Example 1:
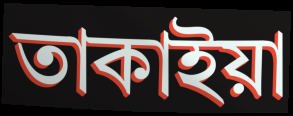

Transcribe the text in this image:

তাকাইয়া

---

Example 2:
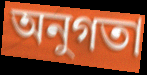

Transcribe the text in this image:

অনুগতা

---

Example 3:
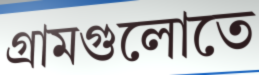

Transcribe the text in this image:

গ্রামগুলোতে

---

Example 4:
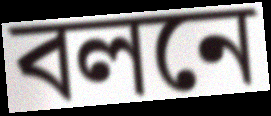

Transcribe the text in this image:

বলনে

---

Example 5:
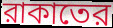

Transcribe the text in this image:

রাকাতের